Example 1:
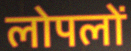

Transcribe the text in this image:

लोपलों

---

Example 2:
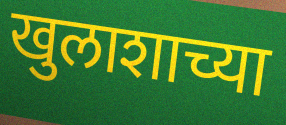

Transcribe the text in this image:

खुलाशाच्या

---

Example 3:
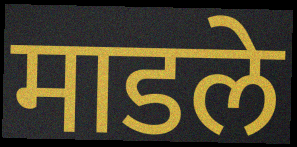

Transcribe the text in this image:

माडले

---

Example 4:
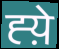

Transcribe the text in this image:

ह्य़े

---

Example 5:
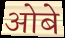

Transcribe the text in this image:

ओबे